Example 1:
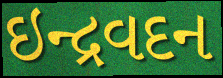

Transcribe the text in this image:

ઇન્દ્રવદન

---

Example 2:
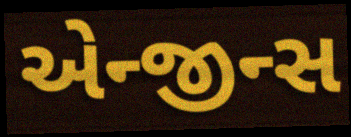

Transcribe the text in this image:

એન્જીન્સ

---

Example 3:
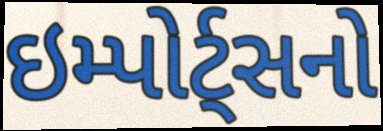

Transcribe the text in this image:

ઇમ્પોર્ટ્સનો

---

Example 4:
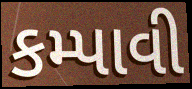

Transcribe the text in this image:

કમ્પાવી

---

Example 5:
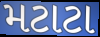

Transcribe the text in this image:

મટાટા